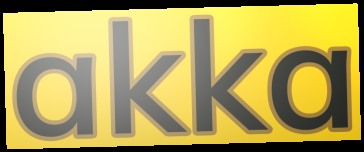
akka